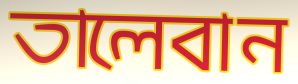
তালেবান